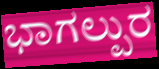
ಭಾಗಲ್ಪುರ